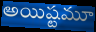
అయిష్టమూ